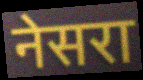
नेसरा